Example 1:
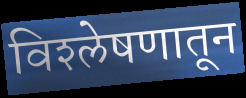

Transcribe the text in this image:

विश्लेषणातून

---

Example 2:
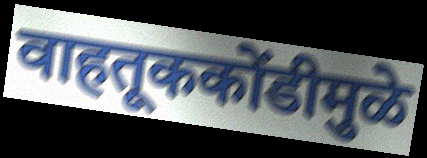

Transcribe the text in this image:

वाहतूककोंडीमुळे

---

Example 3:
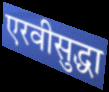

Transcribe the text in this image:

एरवीसुद्धा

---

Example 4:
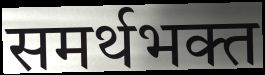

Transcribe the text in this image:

समर्थभक्त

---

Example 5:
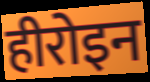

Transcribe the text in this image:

हीरोइन